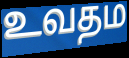
உவதம